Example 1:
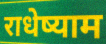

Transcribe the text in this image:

राधेष्याम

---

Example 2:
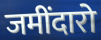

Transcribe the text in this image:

जमींदारो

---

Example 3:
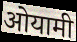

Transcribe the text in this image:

ओयामी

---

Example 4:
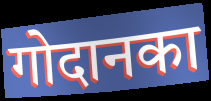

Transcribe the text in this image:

गोदानका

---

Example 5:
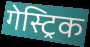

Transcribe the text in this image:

गेस्ट्रिक